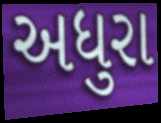
અધુરા